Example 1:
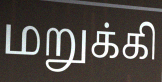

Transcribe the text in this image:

மறுக்கி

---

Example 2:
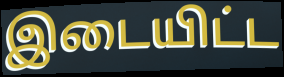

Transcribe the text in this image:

இடையிட்ட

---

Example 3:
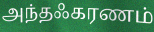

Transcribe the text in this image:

அந்தஃகரணம்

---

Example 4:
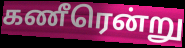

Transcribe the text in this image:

கணீரென்று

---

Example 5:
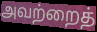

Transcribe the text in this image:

அவற்றைத்